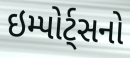
ઇમ્પોર્ટ્સનો